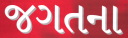
જગતના